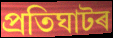
প্ৰতিঘাটৰ